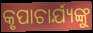
କୃପାଚାର୍ଯ୍ୟଙ୍କୁ